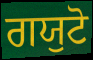
ਗਯੁਟੋ